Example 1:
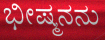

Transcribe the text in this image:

ಭೀಷ್ಮನನು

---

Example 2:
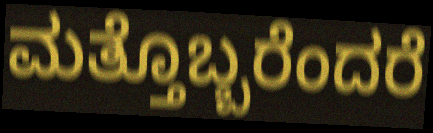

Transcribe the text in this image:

ಮತ್ತೊಬ್ಬರೆಂದರೆ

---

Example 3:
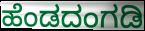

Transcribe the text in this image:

ಹೆಂಡದಂಗಡಿ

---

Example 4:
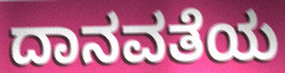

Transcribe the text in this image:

ದಾನವತೆಯ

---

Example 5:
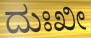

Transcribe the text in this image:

ದುಃಖೀ